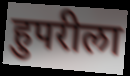
हुपरीला